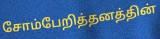
சோம்பேறித்தனத்தின்